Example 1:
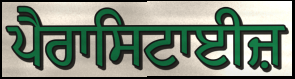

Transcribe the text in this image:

ਪੈਰਾਸਿਟਾਈਜ਼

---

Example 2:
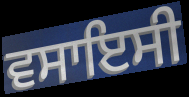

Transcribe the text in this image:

ਵਸਾਇਸੀ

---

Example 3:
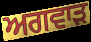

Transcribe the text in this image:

ਅਗਵਾੜ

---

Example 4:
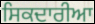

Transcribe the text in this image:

ਸਿਕਦਾਰੀਆ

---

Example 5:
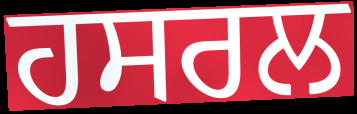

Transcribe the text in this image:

ਹਸਰਲ